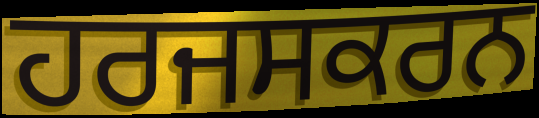
ਹਰਜਸਕਰਨ